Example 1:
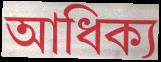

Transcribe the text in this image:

আধিক্য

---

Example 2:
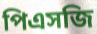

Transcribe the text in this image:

পিএসজি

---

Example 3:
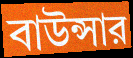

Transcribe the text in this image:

বাউন্সার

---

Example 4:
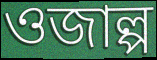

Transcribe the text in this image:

ওজাল্প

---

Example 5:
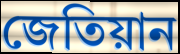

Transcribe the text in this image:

জেতিয়ান